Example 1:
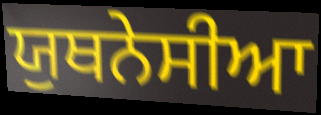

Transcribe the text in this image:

ਯੁਥਨੇਸੀਆ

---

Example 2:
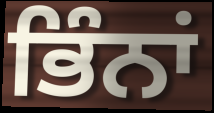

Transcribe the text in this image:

ਭਿੰਨਾਂ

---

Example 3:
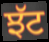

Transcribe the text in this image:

ਝੱਟ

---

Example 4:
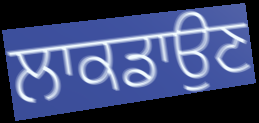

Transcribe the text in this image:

ਲਾਕਡਾਉਣ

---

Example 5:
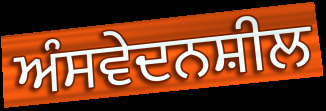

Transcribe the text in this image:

ਅੰਸਵੇਦਨਸ਼ੀਲ